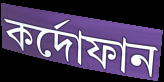
কর্দোফান